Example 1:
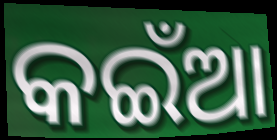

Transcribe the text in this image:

କଇଁଆ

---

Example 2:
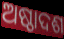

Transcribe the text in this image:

ଅଷ୍ଠାଦଶ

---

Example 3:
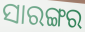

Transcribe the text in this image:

ସାରଙ୍ଗର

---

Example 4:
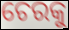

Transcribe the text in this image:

ଚେରକୁ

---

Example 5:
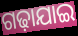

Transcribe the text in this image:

ଗଢ଼ାଯାଇ